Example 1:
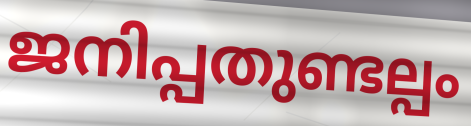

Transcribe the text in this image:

ജനിപ്പതുണ്ടല്പം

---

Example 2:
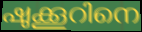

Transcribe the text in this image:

ഷുക്കൂറിനെ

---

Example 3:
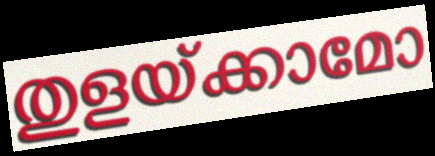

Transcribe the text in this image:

തുളയ്‌ക്കാമോ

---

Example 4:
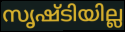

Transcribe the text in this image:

സൃഷ്ടിയില്ല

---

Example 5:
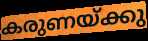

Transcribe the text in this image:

കരുണയ്ക്കു